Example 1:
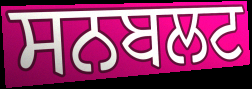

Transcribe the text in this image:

ਸਨਬਲਟ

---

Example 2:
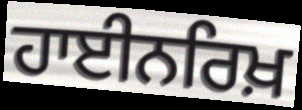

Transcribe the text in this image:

ਹਾਈਨਰਿਖ਼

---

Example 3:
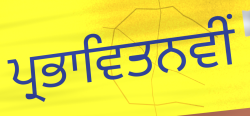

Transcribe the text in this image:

ਪ੍ਰਭਾਵਿਤਨਵੀਂ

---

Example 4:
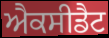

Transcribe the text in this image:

ਐਕਸੀਡੈਟ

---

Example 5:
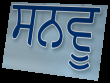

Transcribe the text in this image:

ਸਨਵੂ